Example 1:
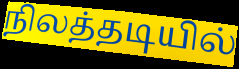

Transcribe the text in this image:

நிலத்தடியில்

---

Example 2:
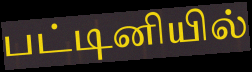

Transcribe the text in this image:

பட்டினியில்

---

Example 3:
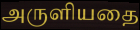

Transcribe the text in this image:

அருளியதை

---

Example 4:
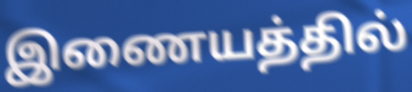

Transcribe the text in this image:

இணையத்தில்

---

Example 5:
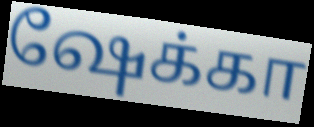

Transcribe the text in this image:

ஷேக்கா